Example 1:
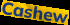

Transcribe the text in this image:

Cashew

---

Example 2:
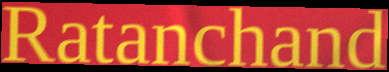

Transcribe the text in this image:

Ratanchand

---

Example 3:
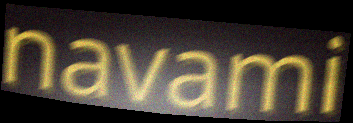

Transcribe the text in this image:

navami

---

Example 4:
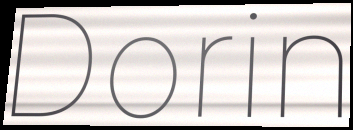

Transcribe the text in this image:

Dorin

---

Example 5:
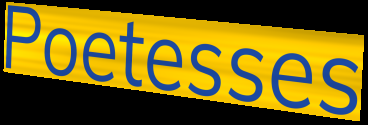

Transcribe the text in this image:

Poetesses